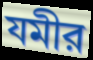
যমীর